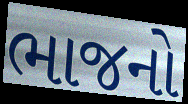
ભાજનો